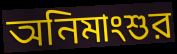
অনিমাংশুর